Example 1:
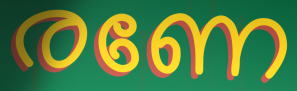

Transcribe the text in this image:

രണേ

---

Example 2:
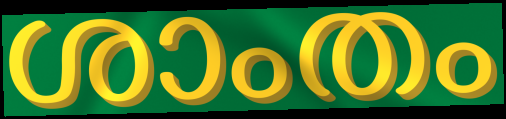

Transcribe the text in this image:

ശാംതം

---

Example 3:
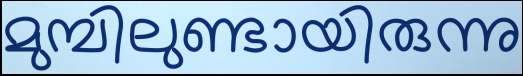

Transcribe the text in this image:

മുമ്പിലുണ്ടായിരുന്നു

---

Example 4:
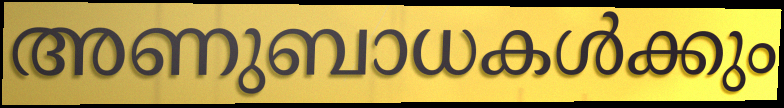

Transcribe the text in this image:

അണുബാധകൾക്കും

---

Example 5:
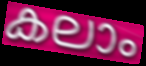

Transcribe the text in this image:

കലാം